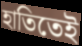
হাতিতেই